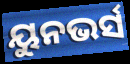
ୟୁନଭର୍ସ